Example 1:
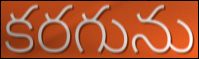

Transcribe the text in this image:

కరగును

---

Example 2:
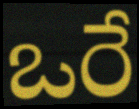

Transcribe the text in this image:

ఒరే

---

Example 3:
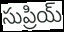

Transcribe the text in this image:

సుప్రియ్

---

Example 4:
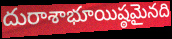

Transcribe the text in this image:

దురాశాభూయిష్ఠమైనది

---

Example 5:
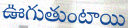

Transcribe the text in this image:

ఊగుతుంటాయి